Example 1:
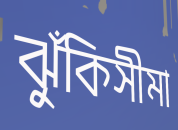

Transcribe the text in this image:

ঝুঁকিসীমা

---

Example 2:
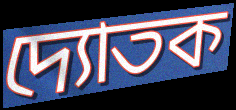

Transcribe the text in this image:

দ্যোতক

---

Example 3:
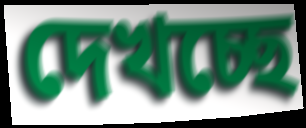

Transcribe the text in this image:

দেখচ্ছে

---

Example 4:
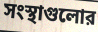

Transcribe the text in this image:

সংস্থাগুলোর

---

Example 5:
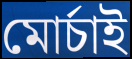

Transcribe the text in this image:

মোর্চাই